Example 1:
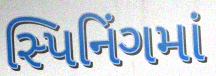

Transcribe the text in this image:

સ્પિનિંગમાં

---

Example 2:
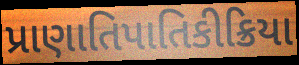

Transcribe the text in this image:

પ્રાણાતિપાતિકીક્રિયા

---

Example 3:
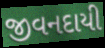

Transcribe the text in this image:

જીવનદાયી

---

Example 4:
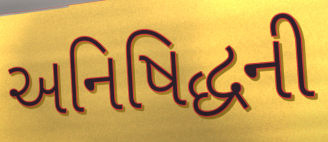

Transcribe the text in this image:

અનિષિદ્ધની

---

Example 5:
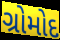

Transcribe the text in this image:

ગ્રોમોદ